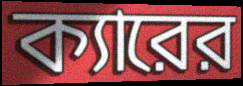
ক্যারের